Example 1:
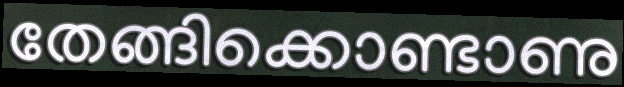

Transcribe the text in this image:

തേങ്ങിക്കൊണ്ടാണു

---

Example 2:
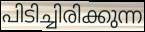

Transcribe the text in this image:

പിടിച്ചിരിക്കുന്ന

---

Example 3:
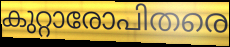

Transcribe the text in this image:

കുറ്റാരോപിതരെ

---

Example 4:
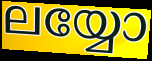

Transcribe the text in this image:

ലയ്യോ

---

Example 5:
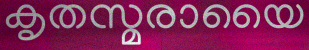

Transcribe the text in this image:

കൃതസ്മരായൈ